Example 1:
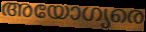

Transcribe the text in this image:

അയോഗ്യരെ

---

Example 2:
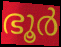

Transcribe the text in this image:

ഭൂർ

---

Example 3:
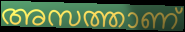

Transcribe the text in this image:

അസത്താണ്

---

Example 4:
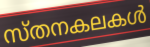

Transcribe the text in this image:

സ്തനകലകൾ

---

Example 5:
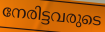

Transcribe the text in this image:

നേരിട്ടവരുടെ